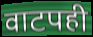
वाटपही